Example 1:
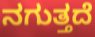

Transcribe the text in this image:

ನಗುತ್ತದೆ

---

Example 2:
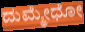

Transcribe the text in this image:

ದುಮ್ಮೇಧೋ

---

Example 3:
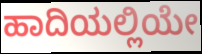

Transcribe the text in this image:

ಹಾದಿಯಲ್ಲಿಯೇ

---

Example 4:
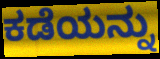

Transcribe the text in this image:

ಕಡೆಯನ್ನು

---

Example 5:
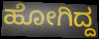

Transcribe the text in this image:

ಹೋಗಿದ್ದ